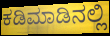
ಕಡಿಮಾಡಿನಲ್ಲಿ